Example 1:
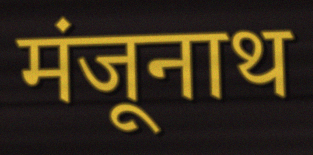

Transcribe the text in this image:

मंजूनाथ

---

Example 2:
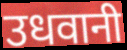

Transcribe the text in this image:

उधवानी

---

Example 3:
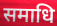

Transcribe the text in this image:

समाधि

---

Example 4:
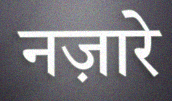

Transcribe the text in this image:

नज़ारे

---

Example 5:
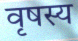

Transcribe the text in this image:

वृषस्य